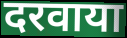
दरवाया